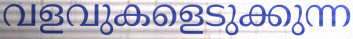
വളവുകളെടുക്കുന്ന